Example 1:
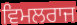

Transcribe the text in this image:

ਵਿਮਲਰਾਜ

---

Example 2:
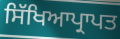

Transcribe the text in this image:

ਸਿੱਖਿਆਪ੍ਰਾਪਤ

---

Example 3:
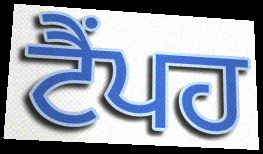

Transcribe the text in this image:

ਟੈਂਪਹ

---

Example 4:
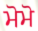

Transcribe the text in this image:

ਮੋਮੋ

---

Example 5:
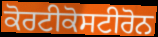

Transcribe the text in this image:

ਕੋਰਟੀਕੋਸਟੀਰੋਨ